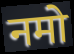
नमो